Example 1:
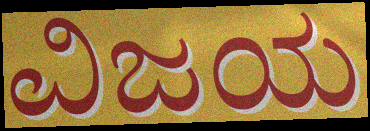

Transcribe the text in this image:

ವಿಜಯ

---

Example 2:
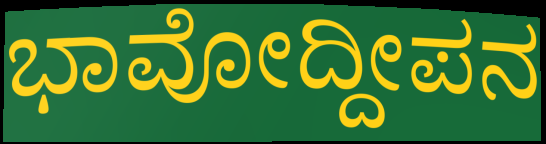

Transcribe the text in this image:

ಭಾವೋದ್ದೀಪನ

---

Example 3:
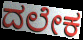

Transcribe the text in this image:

ದಲೇಕ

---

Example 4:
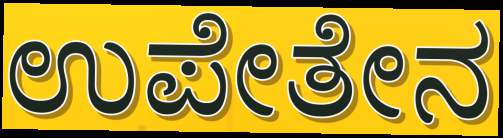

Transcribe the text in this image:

ಉಪೇತೇನ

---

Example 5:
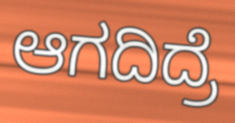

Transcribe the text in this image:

ಆಗದಿದ್ರೆ